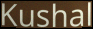
Kushal